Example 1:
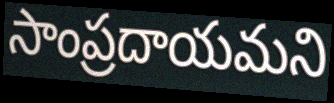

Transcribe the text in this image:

సాంప్రదాయమని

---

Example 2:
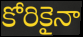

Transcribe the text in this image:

కోరికైనా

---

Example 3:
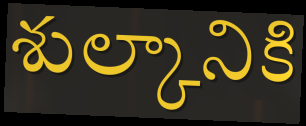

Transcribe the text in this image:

శుల్కానికి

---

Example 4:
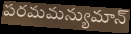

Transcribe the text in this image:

పరమమన్యుమాన్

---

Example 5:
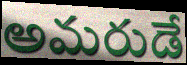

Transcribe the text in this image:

అమరుడే